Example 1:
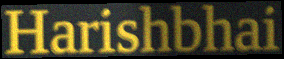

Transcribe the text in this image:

Harishbhai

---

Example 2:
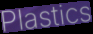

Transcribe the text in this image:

Plastics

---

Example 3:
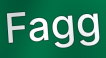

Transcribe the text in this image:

Fagg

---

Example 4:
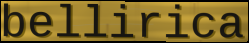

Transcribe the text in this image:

bellirica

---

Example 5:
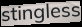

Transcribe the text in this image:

stingless